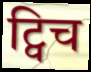
ट्विच